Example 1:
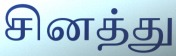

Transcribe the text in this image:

சினத்து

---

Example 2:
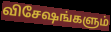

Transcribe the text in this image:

விசேஷங்களும்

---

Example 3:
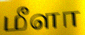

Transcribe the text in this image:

மீளா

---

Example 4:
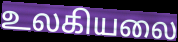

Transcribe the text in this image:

உலகியலை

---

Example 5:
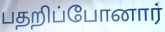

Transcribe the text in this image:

பதறிப்போனார்